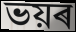
ভয়ৰ